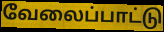
வேலைப்பாட்டு